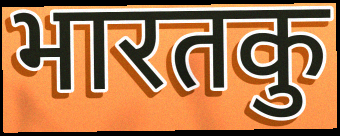
भारतकु